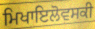
ਮਿਖਾਇਲੋਵਸਕੀ